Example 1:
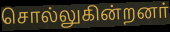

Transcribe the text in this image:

சொல்லுகின்றனர்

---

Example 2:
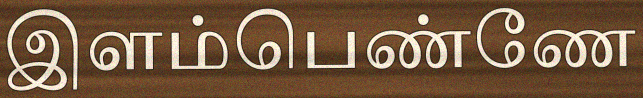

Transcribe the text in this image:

இளம்பெண்ணே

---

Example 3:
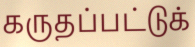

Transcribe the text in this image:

கருதப்பட்டுக்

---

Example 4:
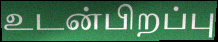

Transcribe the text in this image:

உடன்பிறப்பு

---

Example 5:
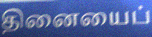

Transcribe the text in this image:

தினையைப்